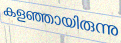
കളഞ്ഞായിരുന്നു